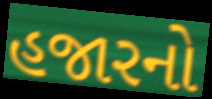
હજારનો